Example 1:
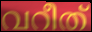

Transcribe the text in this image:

വറീത്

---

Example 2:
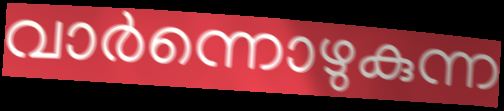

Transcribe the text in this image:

വാർന്നൊഴുകുന്ന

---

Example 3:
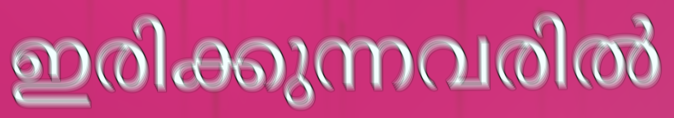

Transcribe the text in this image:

ഇരിക്കുന്നവരിൽ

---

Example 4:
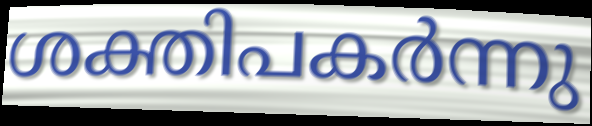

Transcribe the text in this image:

ശക്തിപകർന്നു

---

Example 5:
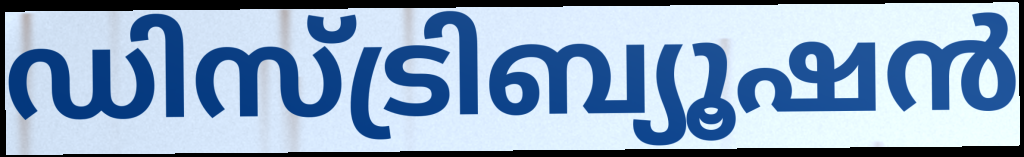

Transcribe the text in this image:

ഡിസ്ട്രിബ്യൂഷൻ